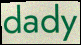
dady